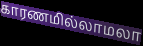
காரணமில்லாமலா